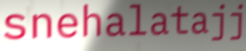
snehalatajj